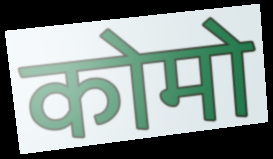
कोमो